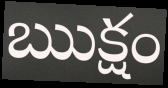
ఋక్షం